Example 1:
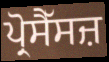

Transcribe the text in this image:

ਪ੍ਰੋਸੈੱਸਜ਼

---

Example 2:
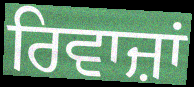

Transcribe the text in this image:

ਰਿਵਾਜ਼ਾਂ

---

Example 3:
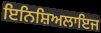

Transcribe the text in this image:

ਇਨਿਸ਼ਿਅਲਾਇਜ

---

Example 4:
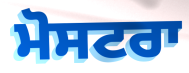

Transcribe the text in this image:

ਮੋਸਟਰਾ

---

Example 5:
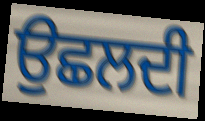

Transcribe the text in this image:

ਉਛਲਦੀ